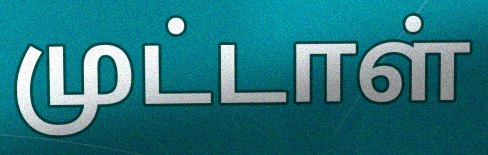
முட்டாள்